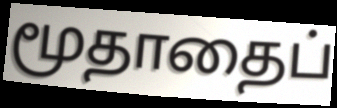
மூதாதைப்